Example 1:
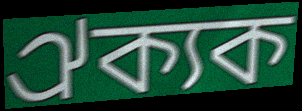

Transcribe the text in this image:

ঐক্যক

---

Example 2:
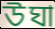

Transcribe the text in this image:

উঘা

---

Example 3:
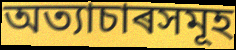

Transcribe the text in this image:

অত্যাচাৰসমূহ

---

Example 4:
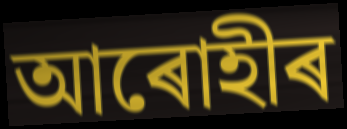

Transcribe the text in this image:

আৰোহীৰ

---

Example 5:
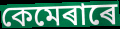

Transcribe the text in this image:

কেমেৰাৰে